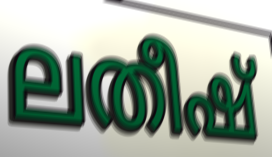
ലതീഷ്